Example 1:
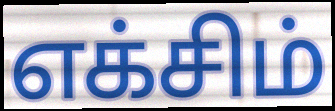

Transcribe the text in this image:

எக்சிம்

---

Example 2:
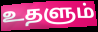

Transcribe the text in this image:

உதளும்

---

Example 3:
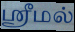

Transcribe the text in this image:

ஶ்ரீமல்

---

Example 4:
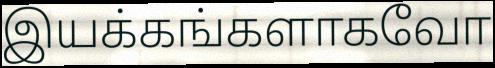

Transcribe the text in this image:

இயக்கங்களாகவோ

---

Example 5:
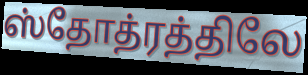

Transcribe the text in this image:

ஸ்தோத்ரத்திலே